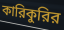
কারিকুরির